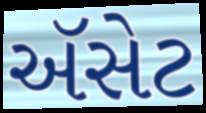
ઍસેટ